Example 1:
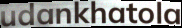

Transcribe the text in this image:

udankhatola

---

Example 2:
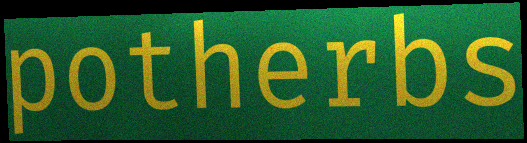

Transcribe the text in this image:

potherbs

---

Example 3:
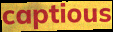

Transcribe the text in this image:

captious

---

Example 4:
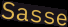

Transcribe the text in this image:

Sasse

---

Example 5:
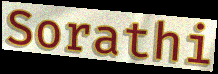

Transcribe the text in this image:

Sorathi